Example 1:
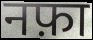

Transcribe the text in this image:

नफ़ा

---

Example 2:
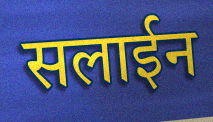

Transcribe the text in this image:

सलाईन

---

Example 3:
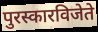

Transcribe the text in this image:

पुरस्कारविजेते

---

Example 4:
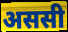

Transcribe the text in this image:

अससी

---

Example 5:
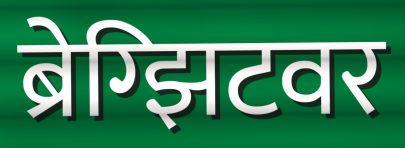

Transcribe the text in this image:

ब्रेग्झिटवर